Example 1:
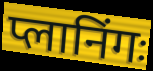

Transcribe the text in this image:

प्लानिंगः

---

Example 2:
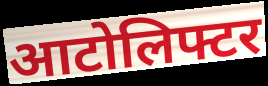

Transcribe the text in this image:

आटोलिफ्टर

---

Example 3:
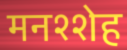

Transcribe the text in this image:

मनश्शेह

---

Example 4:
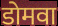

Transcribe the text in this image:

डोमवा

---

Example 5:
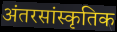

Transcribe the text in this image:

अंतरसांस्कृतिक